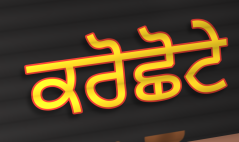
ਕਰੋਛੋਟੇ